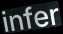
infer